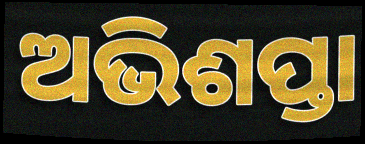
ଅଭିଶପ୍ତା